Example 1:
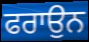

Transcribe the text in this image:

ਫਰਾਉਨ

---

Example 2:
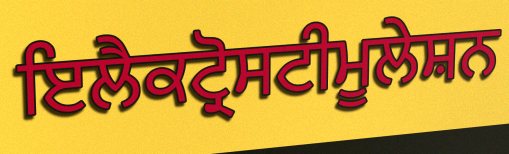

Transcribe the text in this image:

ਇਲੈਕਟ੍ਰੋਸਟੀਮੂਲੇਸ਼ਨ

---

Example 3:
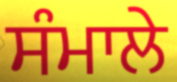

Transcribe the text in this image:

ਸੰਮਾਲੇ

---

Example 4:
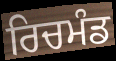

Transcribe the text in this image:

ਰਿਚਮੰਡ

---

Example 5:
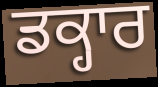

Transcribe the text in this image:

ਡਕ੍ਹਾਰ